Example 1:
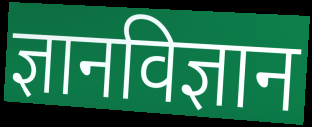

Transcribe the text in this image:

ज्ञानविज्ञान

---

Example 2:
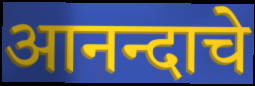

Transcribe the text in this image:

आनन्दाचे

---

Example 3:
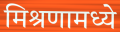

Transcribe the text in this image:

मिश्रणामध्ये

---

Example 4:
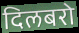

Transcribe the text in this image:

दिलबरो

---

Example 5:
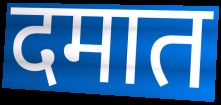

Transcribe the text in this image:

दमात